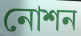
নোশন